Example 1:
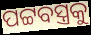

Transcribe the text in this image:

ପଟ୍ଟବସ୍ତ୍ରକୁ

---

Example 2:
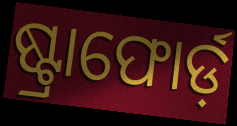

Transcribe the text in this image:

ଷ୍ଟ୍ରାଫୋର୍ଡ଼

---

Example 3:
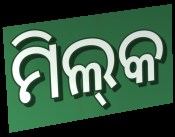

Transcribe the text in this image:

ମିଲ୍‌କ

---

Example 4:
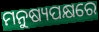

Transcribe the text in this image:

ମନୁଷ୍ୟପକ୍ଷରେ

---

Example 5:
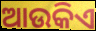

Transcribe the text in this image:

ଆଉକିଏ